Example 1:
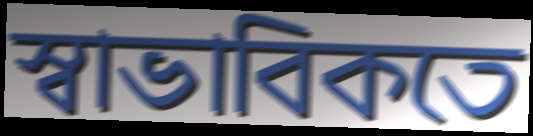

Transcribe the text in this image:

স্বাভাবিকতে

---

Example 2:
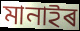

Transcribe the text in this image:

মানাইৰ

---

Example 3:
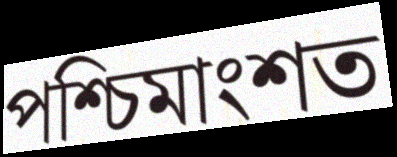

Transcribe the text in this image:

পশ্চিমাংশত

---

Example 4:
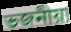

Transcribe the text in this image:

ভজনীয়া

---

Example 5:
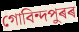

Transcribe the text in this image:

গোবিন্দপুৰৰ